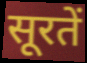
सूरतें